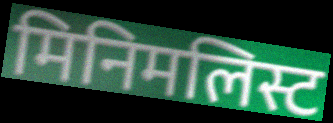
मिनिमलिस्ट